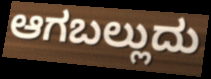
ಆಗಬಲ್ಲುದು